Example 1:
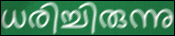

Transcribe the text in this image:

ധരിച്ചിരുന്നു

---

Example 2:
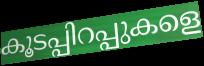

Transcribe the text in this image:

കൂടപ്പിറപ്പുകളെ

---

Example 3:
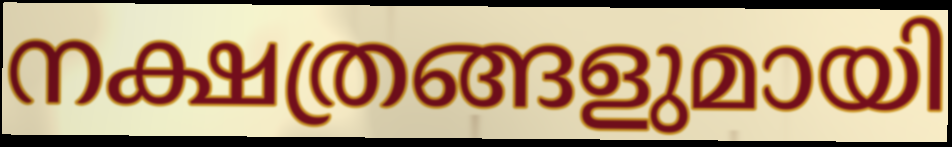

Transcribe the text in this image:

നക്ഷത്രങ്ങളുമായി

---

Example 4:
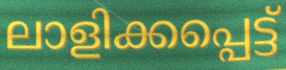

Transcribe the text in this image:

ലാളിക്കപ്പെട്ട്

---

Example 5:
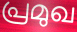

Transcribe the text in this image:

പ്രമുഖ